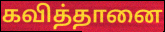
கவித்தானை